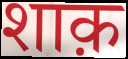
शाक़